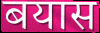
बयास